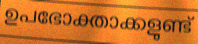
ഉപഭോക്താക്കളുണ്ട്